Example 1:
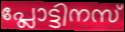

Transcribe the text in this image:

പ്ലോട്ടിനസ്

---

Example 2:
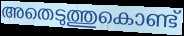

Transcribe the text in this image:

അതെടുത്തുകൊണ്ട്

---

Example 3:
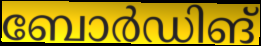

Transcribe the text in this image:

ബോർഡിങ്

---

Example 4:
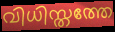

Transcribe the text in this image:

വിധിസ്തത്തേ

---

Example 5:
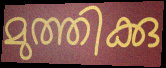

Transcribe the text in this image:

മുത്തിക്കു